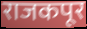
राजकपूर